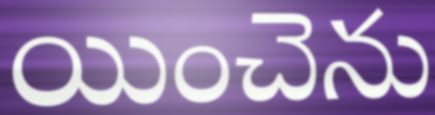
యించెను